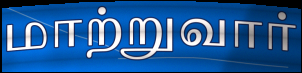
மாற்றுவார்